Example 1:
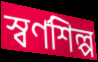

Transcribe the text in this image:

স্বর্ণশিল্প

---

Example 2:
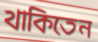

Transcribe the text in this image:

থাকিতেন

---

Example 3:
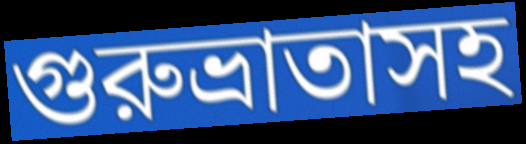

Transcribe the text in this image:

গুরুভ্রাতাসহ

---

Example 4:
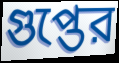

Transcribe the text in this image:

গুপ্তের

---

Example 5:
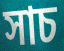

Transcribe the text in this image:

সাচ